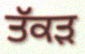
ਤੱਕੜ